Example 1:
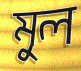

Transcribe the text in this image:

মুল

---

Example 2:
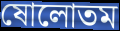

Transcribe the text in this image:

ষোলোতম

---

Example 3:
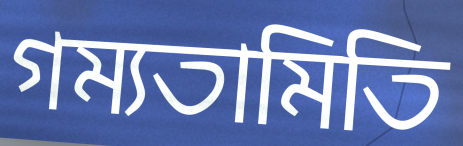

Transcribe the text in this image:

গম্যতামিতি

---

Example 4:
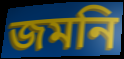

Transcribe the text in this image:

জমনি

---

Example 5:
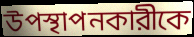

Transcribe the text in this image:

উপস্থাপনকারীকে